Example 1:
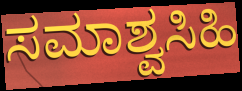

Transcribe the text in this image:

ಸಮಾಶ್ವಸಿಹಿ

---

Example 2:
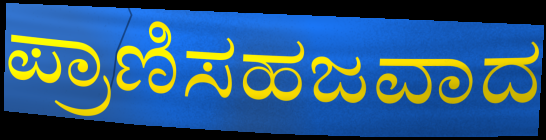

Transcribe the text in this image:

ಪ್ರಾಣಿಸಹಜವಾದ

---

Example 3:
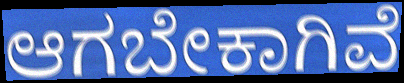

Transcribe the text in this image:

ಆಗಬೇಕಾಗಿವೆ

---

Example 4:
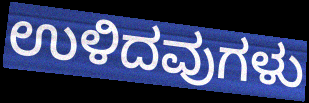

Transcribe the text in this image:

ಉಳಿದವುಗಳು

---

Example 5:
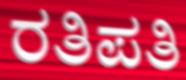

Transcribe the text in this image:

ರತಿಪತಿ